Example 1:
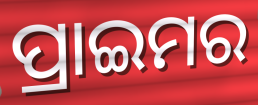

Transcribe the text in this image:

ପ୍ରାଇମର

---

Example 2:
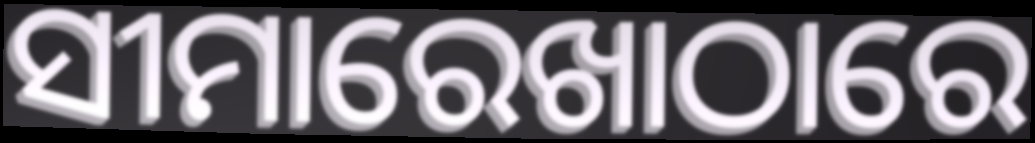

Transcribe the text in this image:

ସୀମାରେଖାଠାରେ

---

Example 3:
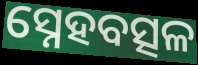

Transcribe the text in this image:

ସ୍ନେହବତ୍ସଳ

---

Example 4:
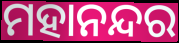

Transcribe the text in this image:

ମହାନନ୍ଦର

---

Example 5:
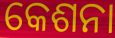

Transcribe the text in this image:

କେଶନା